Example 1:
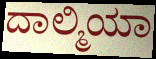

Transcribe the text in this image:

ದಾಲ್ಮಿಯಾ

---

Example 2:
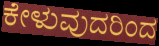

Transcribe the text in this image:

ಕೇಳುವುದರಿಂದ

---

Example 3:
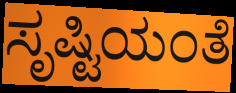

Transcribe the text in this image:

ಸೃಷ್ಟಿಯಂತೆ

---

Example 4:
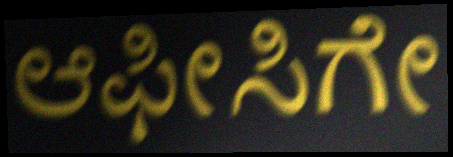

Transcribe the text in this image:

ಆಫೀಸಿಗೇ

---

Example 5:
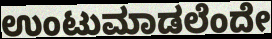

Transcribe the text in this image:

ಉಂಟುಮಾಡಲೆಂದೇ